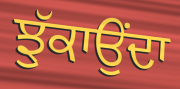
ਝੁੱਕਾਉਂਦਾ